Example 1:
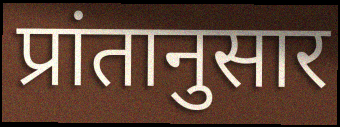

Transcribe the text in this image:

प्रांतानुसार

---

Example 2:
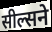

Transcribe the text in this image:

सील्सने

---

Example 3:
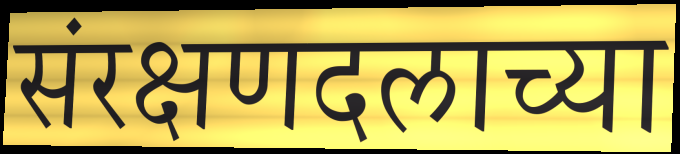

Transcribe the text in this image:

संरक्षणदलाच्या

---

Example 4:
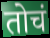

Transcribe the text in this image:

तोचं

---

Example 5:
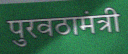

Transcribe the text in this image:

पुरवठामंत्री